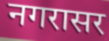
नगरासर